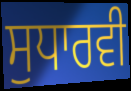
ਸੁਧਾਰਵੀ